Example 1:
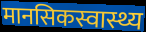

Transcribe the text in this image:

मानसिकस्वास्थ्य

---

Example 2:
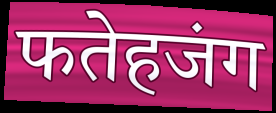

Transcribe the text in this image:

फतेहजंग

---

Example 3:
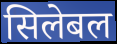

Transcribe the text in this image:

सिलेबल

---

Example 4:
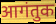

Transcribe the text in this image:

आगंतुक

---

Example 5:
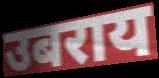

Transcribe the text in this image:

उबराय